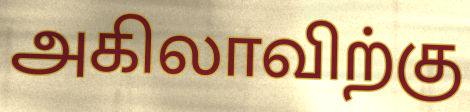
அகிலாவிற்கு